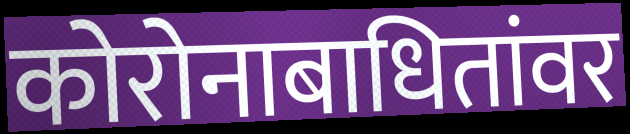
कोरोनाबाधितांवर